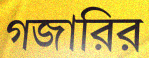
গজারির